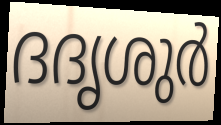
ദദൃശുർ